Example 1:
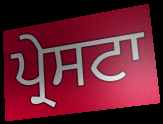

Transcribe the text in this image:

ਪ੍ਰੇਸਟਾ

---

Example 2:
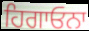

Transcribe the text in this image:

ਹਿਗਾਓਨਾ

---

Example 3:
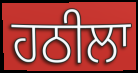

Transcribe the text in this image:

ਹਠੀਲਾ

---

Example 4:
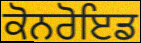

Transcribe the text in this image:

ਕੋਨਰੋਇਡ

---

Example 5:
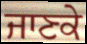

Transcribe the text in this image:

ਜਾਣਕੇ